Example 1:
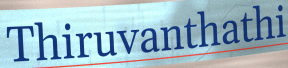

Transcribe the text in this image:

Thiruvanthathi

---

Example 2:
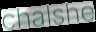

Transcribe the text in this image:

chalshe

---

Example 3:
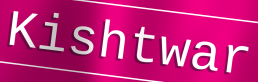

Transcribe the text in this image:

Kishtwar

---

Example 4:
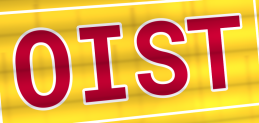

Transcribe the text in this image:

OIST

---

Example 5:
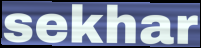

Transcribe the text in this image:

sekhar